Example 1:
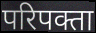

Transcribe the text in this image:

परिपक्ता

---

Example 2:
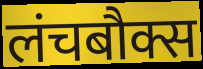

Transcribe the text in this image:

लंचबौक्स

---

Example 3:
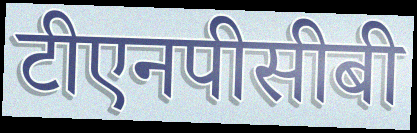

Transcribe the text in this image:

टीएनपीसीबी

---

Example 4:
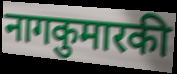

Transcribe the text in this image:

नागकुमारकी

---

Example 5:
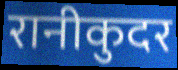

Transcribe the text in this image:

रानीकुदर